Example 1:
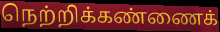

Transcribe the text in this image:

நெற்றிக்கண்ணைக்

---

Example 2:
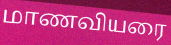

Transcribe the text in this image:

மாணவியரை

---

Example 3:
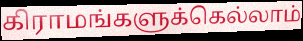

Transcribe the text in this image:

கிராமங்களுக்கெல்லாம்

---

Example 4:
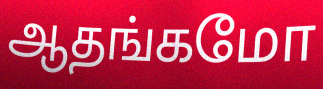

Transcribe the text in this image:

ஆதங்கமோ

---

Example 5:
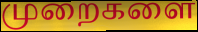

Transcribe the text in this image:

முறைகளை